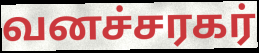
வனச்சரகர்